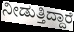
ನೀಡುತ್ತಿದ್ದಾರೆ